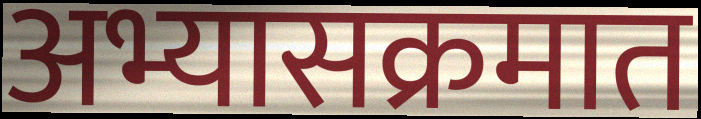
अभ्यासक्रमात